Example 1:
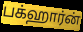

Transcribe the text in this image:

பக்ஹார்ன்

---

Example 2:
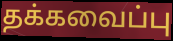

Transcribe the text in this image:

தக்கவைப்பு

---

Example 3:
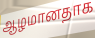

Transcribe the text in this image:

ஆழமானதாக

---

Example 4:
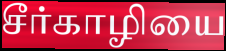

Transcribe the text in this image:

சீர்காழியை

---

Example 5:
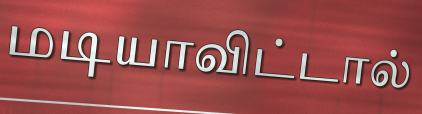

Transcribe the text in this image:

மடியாவிட்டால்